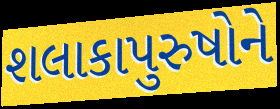
શલાકાપુરુષોને